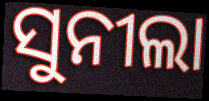
ସୁନୀଲା